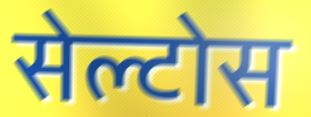
सेल्टोस